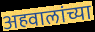
अहवालांच्या